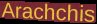
Arachchis